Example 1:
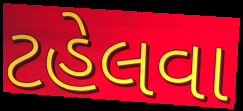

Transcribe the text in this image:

ટહેલવા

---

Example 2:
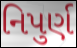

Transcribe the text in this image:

નિપુર્ણ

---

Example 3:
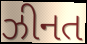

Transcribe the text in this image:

ઝીનત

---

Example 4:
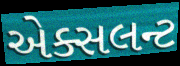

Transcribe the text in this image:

એક્સલન્ટ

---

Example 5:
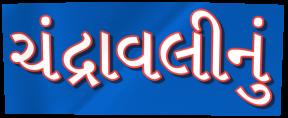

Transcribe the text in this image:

ચંદ્રાવલીનું